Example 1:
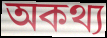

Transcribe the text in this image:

অকথ্য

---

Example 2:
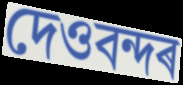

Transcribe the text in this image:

দেওবন্দৰ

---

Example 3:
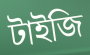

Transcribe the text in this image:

টাইজি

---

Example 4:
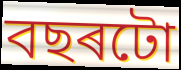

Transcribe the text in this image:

বছৰটো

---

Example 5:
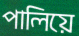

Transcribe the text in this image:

পালিয়ে